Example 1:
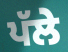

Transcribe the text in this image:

ਪੱਲੇ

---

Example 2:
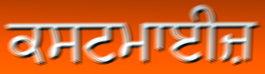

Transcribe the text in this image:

ਕਸਟਮਾਈਜ਼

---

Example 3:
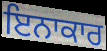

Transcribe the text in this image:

ਇਨਾਕਾਰ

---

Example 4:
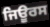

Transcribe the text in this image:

ਜਿਊਰਸ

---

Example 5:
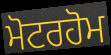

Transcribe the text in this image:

ਮੋਟਰਹੋਮ